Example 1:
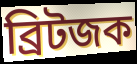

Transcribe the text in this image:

ব্রিটজক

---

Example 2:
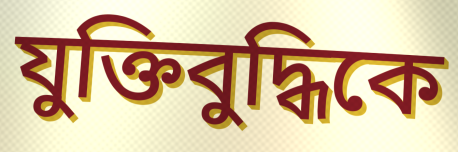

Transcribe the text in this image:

যুক্তিবুদ্ধিকে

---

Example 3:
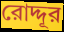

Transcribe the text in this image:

রোদ্দূর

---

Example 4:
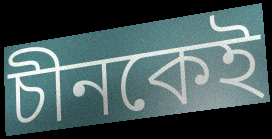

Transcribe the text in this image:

চীনকেই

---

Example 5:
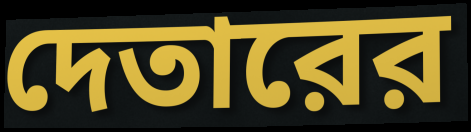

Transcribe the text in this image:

দেতারের